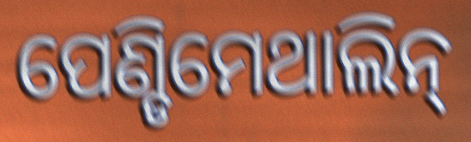
ପେଣ୍ଡିମେଥାଲିନ୍